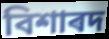
বিশাৰদ